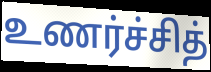
உணர்ச்சித்